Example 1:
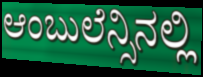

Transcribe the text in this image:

ಆಂಬುಲೆನ್ಸಿನಲ್ಲಿ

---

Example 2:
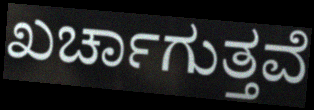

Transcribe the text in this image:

ಖರ್ಚಾಗುತ್ತವೆ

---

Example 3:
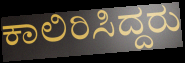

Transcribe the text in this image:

ಕಾಲಿರಿಸಿದ್ದರು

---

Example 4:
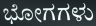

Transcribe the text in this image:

ಭೋಗಗಳು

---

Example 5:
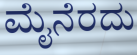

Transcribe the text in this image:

ಮೈನೆರದು